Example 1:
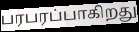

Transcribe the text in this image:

பரபரப்பாகிறது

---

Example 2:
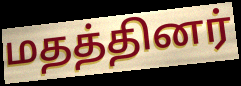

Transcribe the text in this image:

மதத்தினர்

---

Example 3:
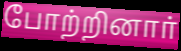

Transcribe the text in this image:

போற்றினார்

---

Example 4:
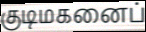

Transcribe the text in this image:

குடிமகனைப்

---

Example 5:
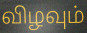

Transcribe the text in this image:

விழவும்